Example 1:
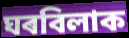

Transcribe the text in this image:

ঘৰবিলাক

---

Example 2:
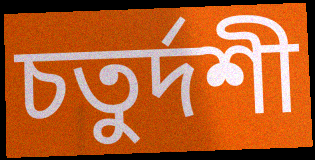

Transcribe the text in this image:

চতুৰ্দশী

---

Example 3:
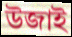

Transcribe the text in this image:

উজাই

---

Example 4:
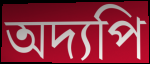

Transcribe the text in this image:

অদ্যপি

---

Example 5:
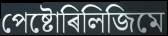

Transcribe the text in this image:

পেষ্টোৰিলিজিমে